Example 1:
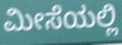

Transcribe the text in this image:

ಮೀಸೆಯಲ್ಲಿ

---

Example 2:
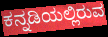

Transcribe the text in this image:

ಕನ್ನಡಿಯಲ್ಲಿರುವ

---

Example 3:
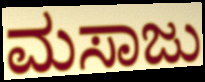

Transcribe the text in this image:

ಮಸಾಜು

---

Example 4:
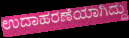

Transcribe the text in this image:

ಉದಾಹರಣೆಯಾಗಿದ್ದು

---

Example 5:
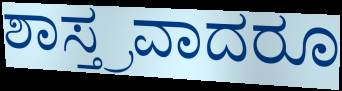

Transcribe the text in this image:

ಶಾಸ್ತ್ರವಾದರೂ